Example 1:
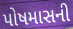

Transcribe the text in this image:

પોષમાસની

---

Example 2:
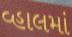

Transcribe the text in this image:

વ્હાલમાં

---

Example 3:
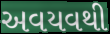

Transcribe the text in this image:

અવયવથી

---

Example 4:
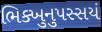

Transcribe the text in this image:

ભિક્ખુનુપસ્સયં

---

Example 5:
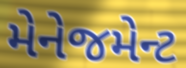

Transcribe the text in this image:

મેનેજમેન્ટ